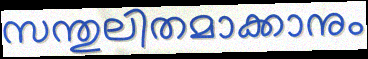
സന്തുലിതമാക്കാനും